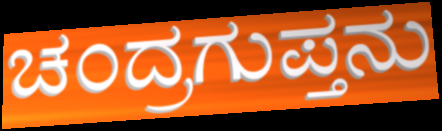
ಚಂದ್ರಗುಪ್ತನು